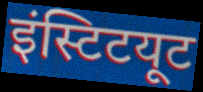
इंस्टिटयूट